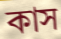
কাস